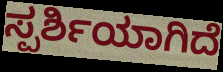
ಸ್ಪರ್ಶಿಯಾಗಿದೆ